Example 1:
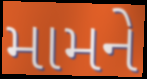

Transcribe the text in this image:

મામને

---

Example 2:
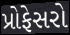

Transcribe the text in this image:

પ્રોફેસરો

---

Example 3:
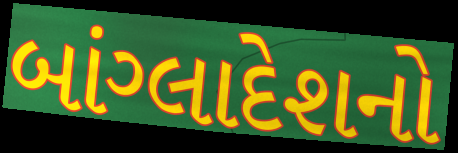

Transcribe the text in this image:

બાંગ્લાદેશનો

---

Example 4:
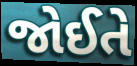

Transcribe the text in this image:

જોઈતે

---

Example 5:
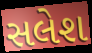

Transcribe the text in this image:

સલેશ